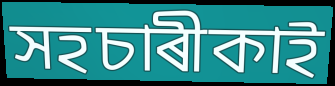
সহচাৰীকাই